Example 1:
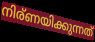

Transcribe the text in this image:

നിര്ണയിക്കുന്നത്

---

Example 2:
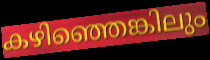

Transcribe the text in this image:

കഴിഞ്ഞെങ്കിലും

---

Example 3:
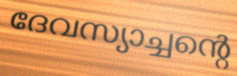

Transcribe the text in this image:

ദേവസ്യാച്ചന്റെ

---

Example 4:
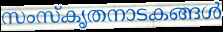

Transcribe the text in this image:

സംസ്കൃതനാടകങ്ങൾ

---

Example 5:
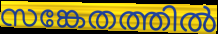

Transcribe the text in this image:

സങ്കേതത്തിൽ